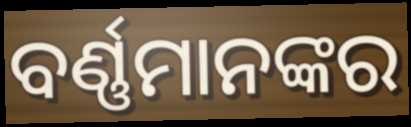
ବର୍ଣ୍ଣମାନଙ୍କର